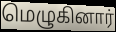
மெழுகினார்